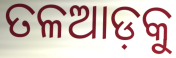
ତଳଆଡ଼କୁ